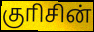
குரிசின்